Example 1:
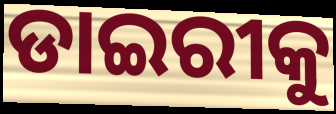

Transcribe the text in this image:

ଡାଇରୀକୁ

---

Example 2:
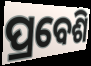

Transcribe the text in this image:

ପ୍ରବେଶି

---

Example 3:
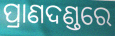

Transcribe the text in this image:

ପ୍ରାଣଦଣ୍ଡରେ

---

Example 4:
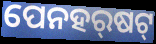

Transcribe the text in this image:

ପେନହର୍‍ଷଟ୍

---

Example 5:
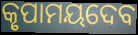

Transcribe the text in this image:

କୃପାମୟଦେବ